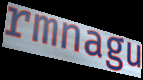
rmnagu